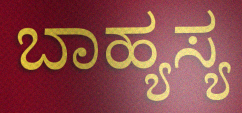
ಬಾಹ್ಯಸ್ಯ